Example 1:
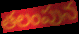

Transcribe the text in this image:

తలంపున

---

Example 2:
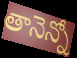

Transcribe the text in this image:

తానెన్నో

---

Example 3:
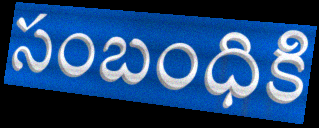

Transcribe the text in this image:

సంబంధికి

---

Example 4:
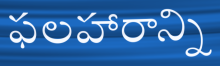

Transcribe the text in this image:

ఫలహారాన్ని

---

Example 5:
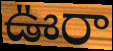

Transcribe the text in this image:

ఊరా